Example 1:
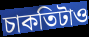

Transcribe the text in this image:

চাকতিটাও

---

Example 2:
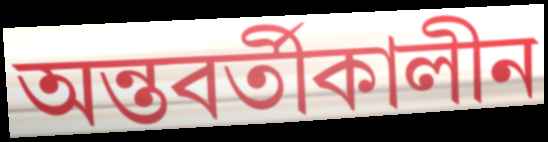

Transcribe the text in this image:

অন্তবর্তীকালীন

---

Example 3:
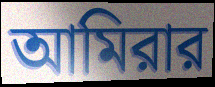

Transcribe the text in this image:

আমিরার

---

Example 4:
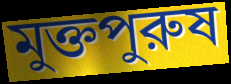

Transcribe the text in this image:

মুক্তপুরুষ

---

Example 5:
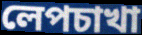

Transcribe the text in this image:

লেপচাখা